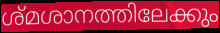
ശ്മശാനത്തിലേക്കും